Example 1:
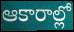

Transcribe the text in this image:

ఆకారాల్లో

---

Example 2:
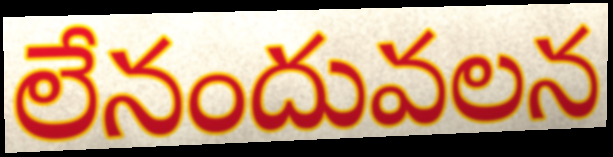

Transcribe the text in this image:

లేనందువలన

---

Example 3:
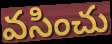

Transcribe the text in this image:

వసించు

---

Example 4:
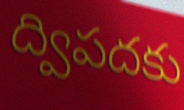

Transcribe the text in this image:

ద్విపదకు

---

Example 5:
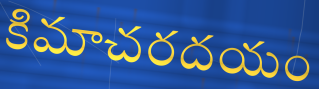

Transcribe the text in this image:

కిమాచరదయం